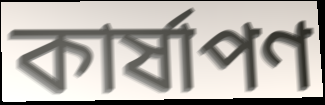
কার্ষাপণ